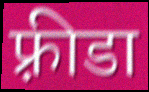
फ़्रीडा